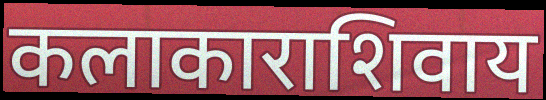
कलाकाराशिवाय